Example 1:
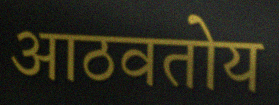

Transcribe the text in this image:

आठवतोय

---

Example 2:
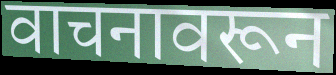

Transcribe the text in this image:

वाचनावरून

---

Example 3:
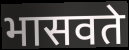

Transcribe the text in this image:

भासवते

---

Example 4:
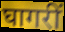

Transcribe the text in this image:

घागरीं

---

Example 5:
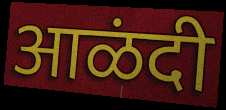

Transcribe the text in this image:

आळंदी